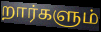
றார்களும்